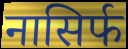
नासिर्फ